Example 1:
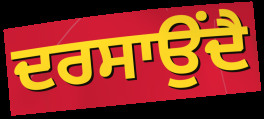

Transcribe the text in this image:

ਦਰਸਾਉਂਦੈ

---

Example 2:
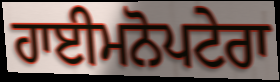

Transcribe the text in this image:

ਹਾਈਮਨੋਪਟੇਰਾ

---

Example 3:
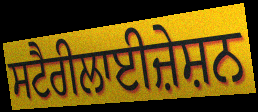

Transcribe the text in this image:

ਸਟੈਰੀਲਾਈਜ਼ੇਸ਼ਨ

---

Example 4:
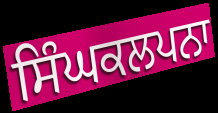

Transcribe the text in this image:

ਸਿੰਘਕਲਪਨਾ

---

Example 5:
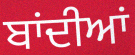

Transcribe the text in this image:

ਬਾਂਦੀਆਂ